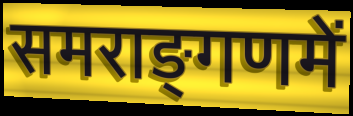
समराङ्गणमें